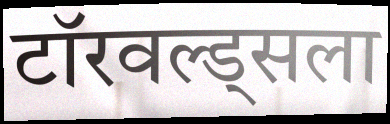
टॉरवल्ड्सला